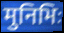
मुनिभिः